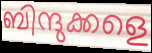
ബിന്ദുക്കളെ